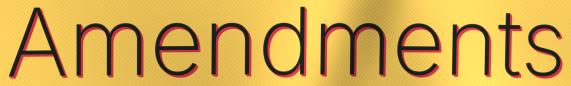
Amendments